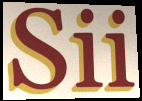
Sii